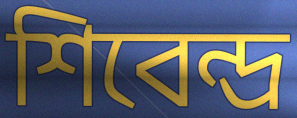
শিবেন্দ্র